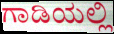
ಗಾಡಿಯಲ್ಲಿ